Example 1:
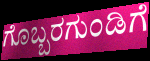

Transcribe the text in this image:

ಗೊಬ್ಬರಗುಂಡಿಗೆ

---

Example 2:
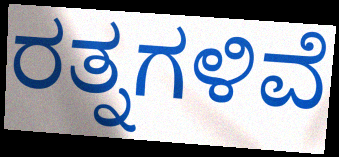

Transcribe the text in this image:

ರತ್ನಗಳಿವೆ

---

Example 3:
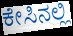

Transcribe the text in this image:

ಕೇಸಿನಲ್ಲಿ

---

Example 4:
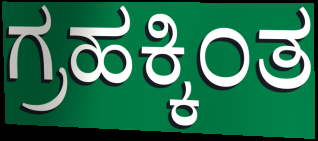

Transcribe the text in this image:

ಗ್ರಹಕ್ಕಿಂತ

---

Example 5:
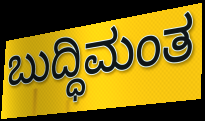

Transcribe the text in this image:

ಬುದ್ಧಿಮಂತ